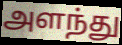
அளந்து